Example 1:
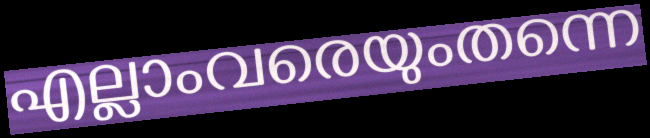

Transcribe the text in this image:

എല്ലാംവരെയുംതന്നെ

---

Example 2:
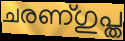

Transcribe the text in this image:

ചരണ്ഗുപ്ത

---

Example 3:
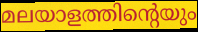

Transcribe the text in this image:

മലയാളത്തിന്റെയും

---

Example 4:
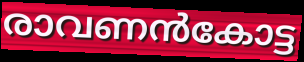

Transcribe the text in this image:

രാവണൻകോട്ട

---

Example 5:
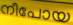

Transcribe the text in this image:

നീപോയ